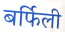
बर्फिली